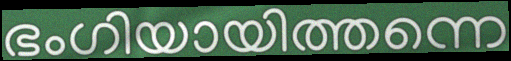
ഭംഗിയായിത്തന്നെ